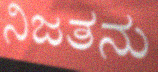
ನಿಜತನು